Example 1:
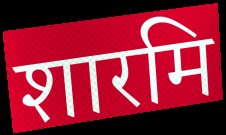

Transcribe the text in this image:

शारमि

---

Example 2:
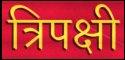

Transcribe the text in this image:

त्रिपक्षी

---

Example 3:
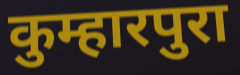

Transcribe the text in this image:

कुम्हारपुरा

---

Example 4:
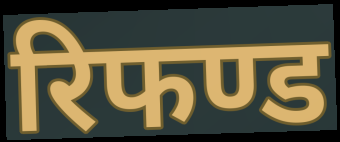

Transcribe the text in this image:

रिफण्ड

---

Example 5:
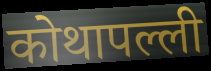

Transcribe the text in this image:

कोथापल्ली